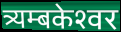
त्र्यम्बकेश्वर